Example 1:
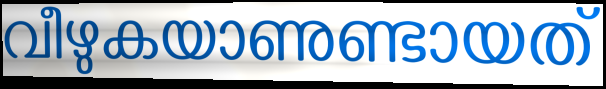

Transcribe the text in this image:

വീഴുകയാണുണ്ടായത്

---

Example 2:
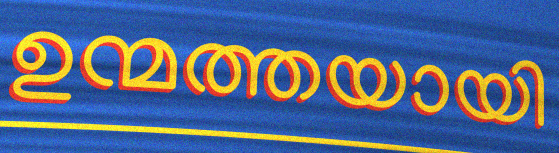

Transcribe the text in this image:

ഉന്മത്തയായി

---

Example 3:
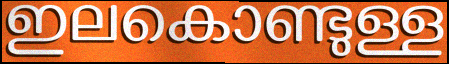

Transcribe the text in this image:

ഇലകൊണ്ടുള്ള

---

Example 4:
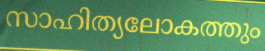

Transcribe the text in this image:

സാഹിത്യലോകത്തും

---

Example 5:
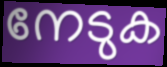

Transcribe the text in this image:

നേടുക